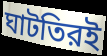
ঘাটতিরই